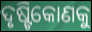
ଦୃଷ୍ଟିକୋଣକୁ